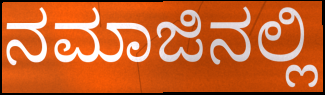
ನಮಾಜಿನಲ್ಲಿ